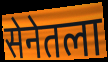
सेनेतला